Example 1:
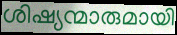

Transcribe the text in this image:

ശിഷ്യന്മാരുമായി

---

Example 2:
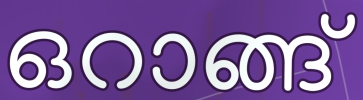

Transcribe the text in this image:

ഒറാങ്ങ്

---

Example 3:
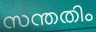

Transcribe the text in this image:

സന്തതിം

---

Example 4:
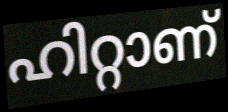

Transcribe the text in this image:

ഹിറ്റാണ്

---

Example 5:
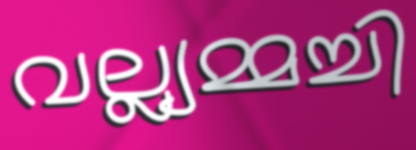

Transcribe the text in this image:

വല്ല്യമ്മച്ചി